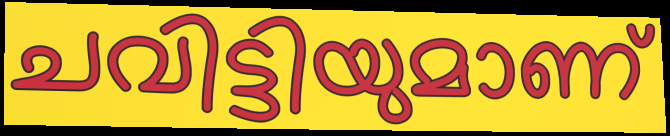
ചവിട്ടിയുമാണ്